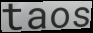
taos